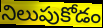
నిలుపుకోడం